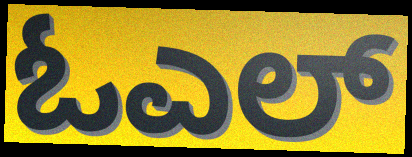
ಓಎಲ್